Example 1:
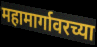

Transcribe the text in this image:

महामार्गावरच्या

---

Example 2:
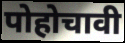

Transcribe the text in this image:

पोहोचावी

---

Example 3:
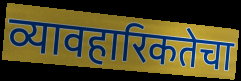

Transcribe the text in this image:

व्यावहारिकतेचा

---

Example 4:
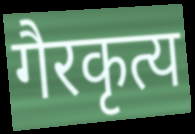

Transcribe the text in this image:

गैरकृत्य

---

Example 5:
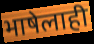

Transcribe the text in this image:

भाषेलाही